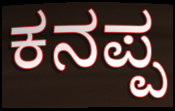
ಕನಪ್ಪ